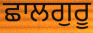
ਛਾਲਗੁਰੂ